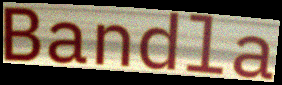
Bandla